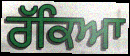
ਰੱਕਿਆ